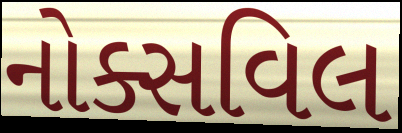
નોક્સવિલ